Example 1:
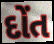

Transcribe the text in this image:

દોંત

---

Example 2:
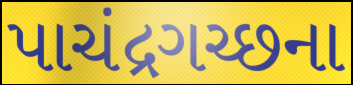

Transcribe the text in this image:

પાચંદ્રગચ્છના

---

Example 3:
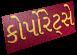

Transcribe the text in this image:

કોર્પોરેટ્સે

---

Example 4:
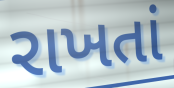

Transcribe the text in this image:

રાખતાં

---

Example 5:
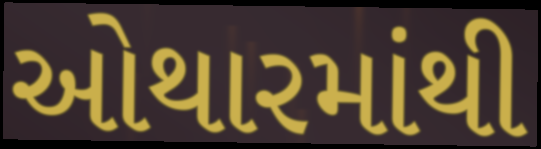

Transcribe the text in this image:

ઓથારમાંથી